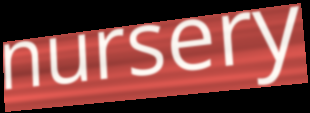
nursery